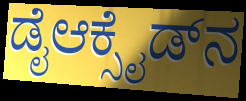
ಡೈಆಕ್ಸೈಡ್‌ನ